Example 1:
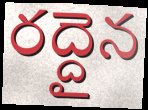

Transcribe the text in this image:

రద్దైన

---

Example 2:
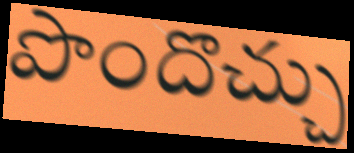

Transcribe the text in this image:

పొందొచ్చు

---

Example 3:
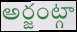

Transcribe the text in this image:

అర్జంట్గా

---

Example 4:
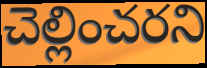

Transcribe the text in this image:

చెల్లించరని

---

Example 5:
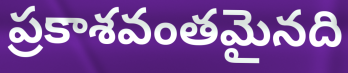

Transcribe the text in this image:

ప్రకాశవంతమైనది